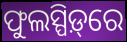
ଫୁଲସ୍ପିଡ଼୍‌ରେ